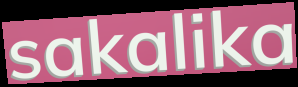
sakalika